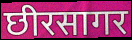
छीरसागर